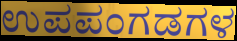
ಉಪಪಂಗಡಗಳ